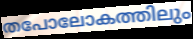
തപോലോകത്തിലും